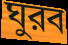
ঘুরব